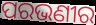
ପରଭଣୀର